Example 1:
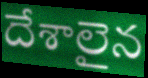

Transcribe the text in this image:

దేశాలైన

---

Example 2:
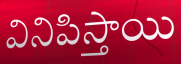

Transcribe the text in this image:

వినిపిస్తాయి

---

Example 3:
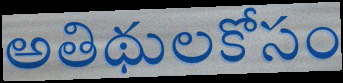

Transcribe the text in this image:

అతిథులకోసం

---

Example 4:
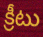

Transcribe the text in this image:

క్రీటు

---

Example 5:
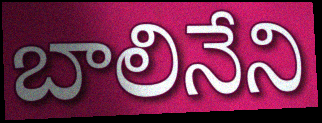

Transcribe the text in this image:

బాలినేని